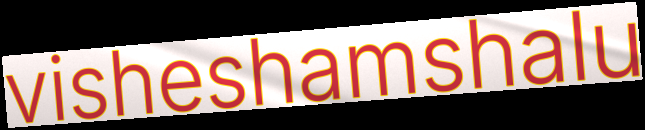
visheshamshalu